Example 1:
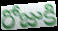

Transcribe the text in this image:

రోజుకి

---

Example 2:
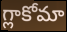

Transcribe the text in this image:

గ్లాకోమా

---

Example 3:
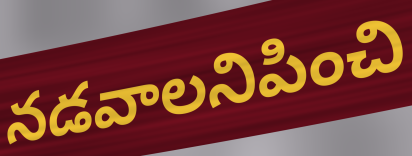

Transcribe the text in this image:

నడవాలనిపించి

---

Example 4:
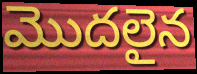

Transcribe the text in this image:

మొదలైన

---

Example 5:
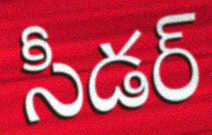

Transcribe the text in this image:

సీడర్